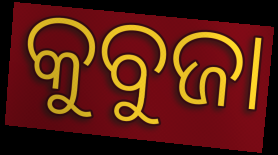
କୁବୁଜା